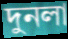
দুনলা